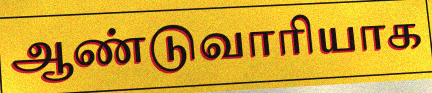
ஆண்டுவாரியாக